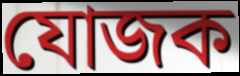
যোজক